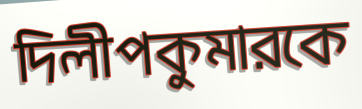
দিলীপকুমারকে